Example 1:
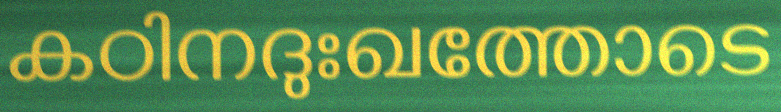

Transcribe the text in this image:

കഠിനദുഃഖത്തോടെ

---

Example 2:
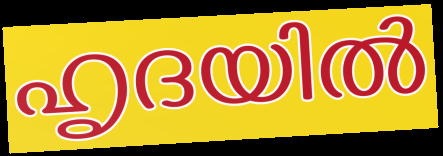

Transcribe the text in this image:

ഹൃദയിൽ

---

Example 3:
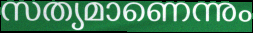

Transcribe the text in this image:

സത്യമാണെന്നും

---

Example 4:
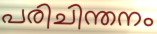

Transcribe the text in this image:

പരിചിന്തനം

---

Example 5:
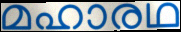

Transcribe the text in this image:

മഹാരഥ